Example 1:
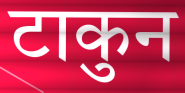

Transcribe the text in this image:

टाकुन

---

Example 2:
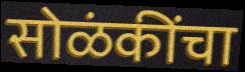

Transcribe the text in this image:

सोळंकींचा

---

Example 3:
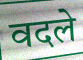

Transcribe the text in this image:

वदले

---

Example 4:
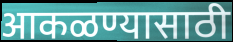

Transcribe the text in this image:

आकळण्यासाठी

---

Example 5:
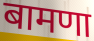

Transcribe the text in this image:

बामणा